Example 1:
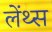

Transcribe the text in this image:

लेंथ्स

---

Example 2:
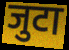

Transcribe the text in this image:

जुटा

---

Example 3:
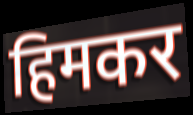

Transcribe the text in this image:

हिमकर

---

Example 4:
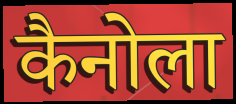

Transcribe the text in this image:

कैनोला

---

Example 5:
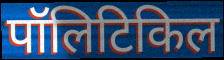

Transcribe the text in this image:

पॉलिटिकिल